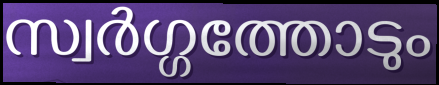
സ്വർഗ്ഗത്തോടും